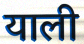
याली